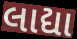
લાદ્યા